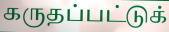
கருதப்பட்டுக்